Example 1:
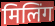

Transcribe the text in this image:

मिलिंग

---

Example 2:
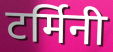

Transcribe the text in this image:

टर्मिनी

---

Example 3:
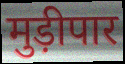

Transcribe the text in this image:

मुड़ीपार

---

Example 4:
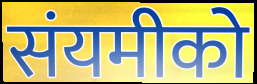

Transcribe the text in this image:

संयमीको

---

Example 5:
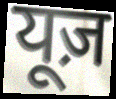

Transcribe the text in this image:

यूज़